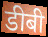
डीबी